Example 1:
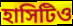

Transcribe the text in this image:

হাসিটিও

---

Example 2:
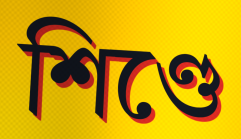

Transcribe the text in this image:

শিণ্ডে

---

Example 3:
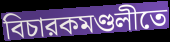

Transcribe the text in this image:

বিচারকমণ্ডলীতে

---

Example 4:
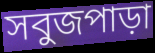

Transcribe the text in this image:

সবুজপাড়া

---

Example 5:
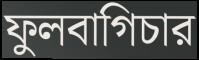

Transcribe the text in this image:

ফুলবাগিচার